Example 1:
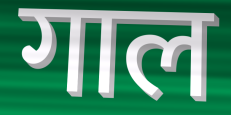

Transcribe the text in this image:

गाल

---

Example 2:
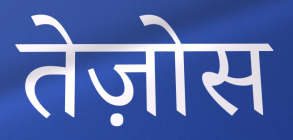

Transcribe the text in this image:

तेज़ोस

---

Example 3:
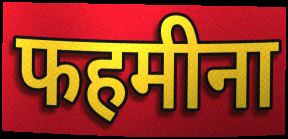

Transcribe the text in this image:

फहमीना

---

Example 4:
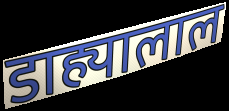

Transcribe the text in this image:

डाह्यालाल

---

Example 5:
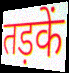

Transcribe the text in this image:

तड़कें